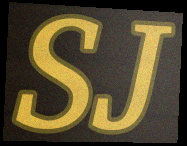
SJ